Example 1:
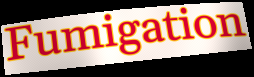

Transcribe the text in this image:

Fumigation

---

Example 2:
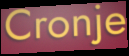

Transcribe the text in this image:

Cronje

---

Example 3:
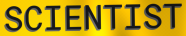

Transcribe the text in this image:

SCIENTIST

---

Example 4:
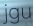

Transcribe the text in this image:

jgu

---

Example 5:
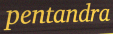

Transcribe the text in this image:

pentandra